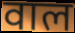
वाल